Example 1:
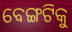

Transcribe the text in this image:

ବେଙ୍ଗଟିକୁ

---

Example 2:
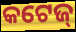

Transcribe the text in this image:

କଟେଜ୍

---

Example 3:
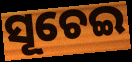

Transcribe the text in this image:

ସୂଚେଇ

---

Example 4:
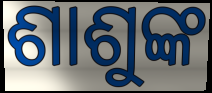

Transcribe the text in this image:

ଶାଶୁଙ୍କ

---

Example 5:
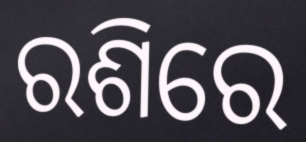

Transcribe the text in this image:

ରଶିରେ